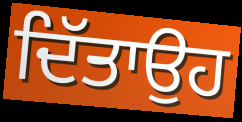
ਦਿੱਤਾਉਹ